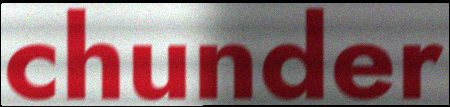
chunder